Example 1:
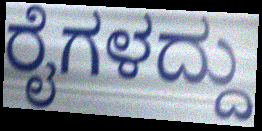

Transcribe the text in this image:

ರೈಗಳದ್ದು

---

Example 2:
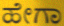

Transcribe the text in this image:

ಹೇಗಾ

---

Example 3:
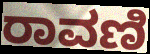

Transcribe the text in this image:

ರಾವಣಿ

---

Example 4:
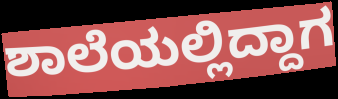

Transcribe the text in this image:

ಶಾಲೆಯಲ್ಲಿದ್ದಾಗ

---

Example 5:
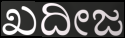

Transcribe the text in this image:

ಖದೀಜ